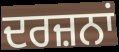
ਦਰਜ਼ਨਾਂ